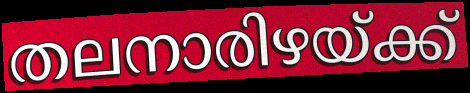
തലനാരിഴയ്ക്ക്